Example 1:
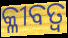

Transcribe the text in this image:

କ୍ଳୀବତ୍ବ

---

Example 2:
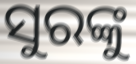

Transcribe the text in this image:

ସୁରଙ୍କୁ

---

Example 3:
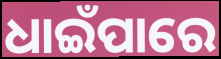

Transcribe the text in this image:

ଧାଇଁପାରେ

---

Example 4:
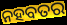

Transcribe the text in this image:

ନହବତର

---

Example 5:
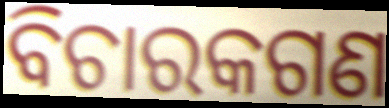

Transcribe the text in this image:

ବିଚାରକଗଣ